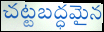
చట్టబద్ధమైన